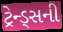
ટ્રેન્ડ્સની